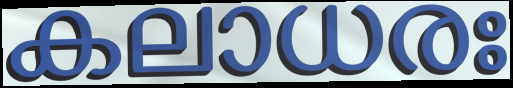
കലാധരഃ